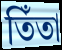
তিঁতা